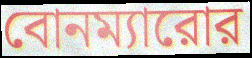
বোনম্যারোর